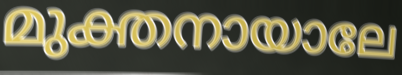
മുക്തനായാലേ